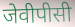
जेवीपीसी